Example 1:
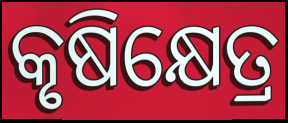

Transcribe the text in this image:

କୃଷିକ୍ଷେତ୍ର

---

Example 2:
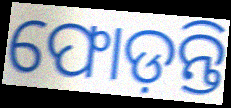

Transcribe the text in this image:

ଫୋଡ଼ନ୍ତି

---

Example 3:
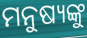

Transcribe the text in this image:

ମନୁଷ୍ୟଙ୍କୁ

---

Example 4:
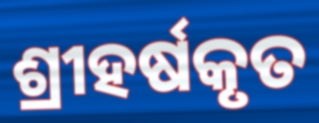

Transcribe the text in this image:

ଶ୍ରୀହର୍ଷକୃତ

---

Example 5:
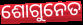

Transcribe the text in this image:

ଶୋଗୁନେତ